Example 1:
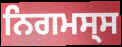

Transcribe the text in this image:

ਨਿਗਮਸ੍ਸ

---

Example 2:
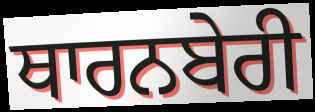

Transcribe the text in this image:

ਥਾਰਨਬੇਰੀ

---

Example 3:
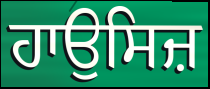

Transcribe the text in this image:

ਹਾਉਸਿਜ਼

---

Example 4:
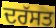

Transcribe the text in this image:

ਦਰੱਸਤ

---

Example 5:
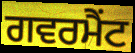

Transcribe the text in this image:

ਗਵਰਮੈਂਟ